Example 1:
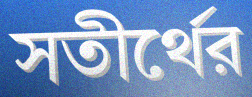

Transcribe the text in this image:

সতীর্থের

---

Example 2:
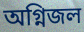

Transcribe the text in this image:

অগ্নিজল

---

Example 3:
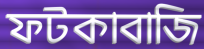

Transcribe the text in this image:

ফটকাবাজি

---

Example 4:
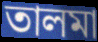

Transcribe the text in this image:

তালমা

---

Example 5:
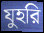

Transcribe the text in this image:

যুহরি